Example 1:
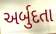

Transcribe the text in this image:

અર્બુદતા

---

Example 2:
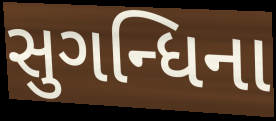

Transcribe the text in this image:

સુગન્ધિના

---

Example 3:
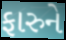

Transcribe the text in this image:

ફારુને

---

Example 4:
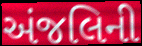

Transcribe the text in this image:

અંજલિની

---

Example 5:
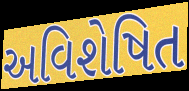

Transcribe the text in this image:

અવિશેષિત